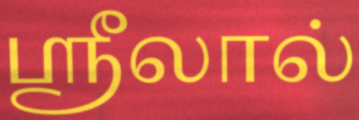
ஸ்ரீலால்